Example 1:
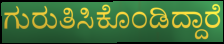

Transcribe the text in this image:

ಗುರುತಿಸಿಕೊಂಡಿದ್ದಾರೆ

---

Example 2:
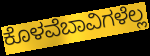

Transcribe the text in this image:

ಕೊಳವೆಬಾವಿಗಳೆಲ್ಲ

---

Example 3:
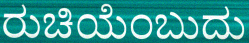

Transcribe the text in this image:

ರುಚಿಯೆಂಬುದು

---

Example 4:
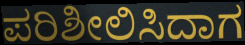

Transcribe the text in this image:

ಪರಿಶೀಲಿಸಿದಾಗ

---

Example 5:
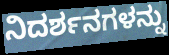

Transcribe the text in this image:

ನಿದರ್ಶನಗಳನ್ನು